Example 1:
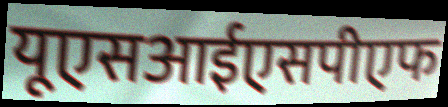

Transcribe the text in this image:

यूएसआईएसपीएफ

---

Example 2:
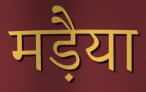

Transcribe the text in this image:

मड़ैया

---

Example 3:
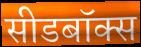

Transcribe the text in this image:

सीडबॉक्स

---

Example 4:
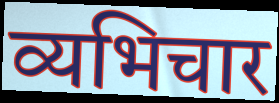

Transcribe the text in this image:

व्यभिचार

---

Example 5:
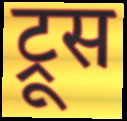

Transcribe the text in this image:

ट्रूस